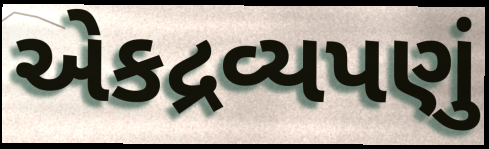
એકદ્રવ્યપણું